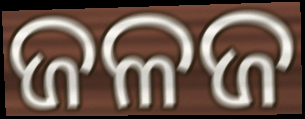
ଜଳଜ